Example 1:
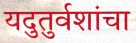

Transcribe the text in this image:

यदुतुर्वशांचा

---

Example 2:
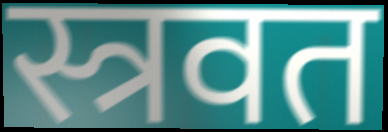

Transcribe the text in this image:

स्त्रवत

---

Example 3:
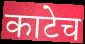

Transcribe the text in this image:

काटेच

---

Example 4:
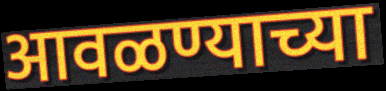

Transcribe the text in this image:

आवळण्याच्या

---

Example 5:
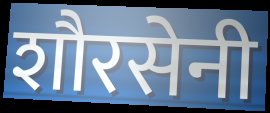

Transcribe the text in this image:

शौरसेनी